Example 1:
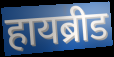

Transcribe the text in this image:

हायब्रीड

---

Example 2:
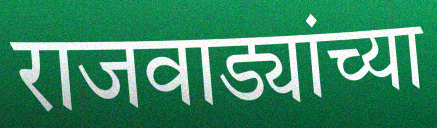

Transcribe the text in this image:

राजवाड्यांच्या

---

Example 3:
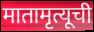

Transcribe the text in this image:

मातामृत्यूची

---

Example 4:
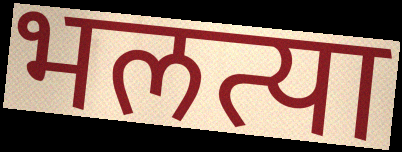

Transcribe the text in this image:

भलत्या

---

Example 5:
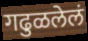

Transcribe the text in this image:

गढुळलेलं